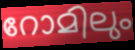
റോമിലും